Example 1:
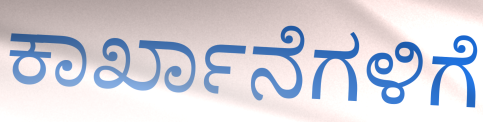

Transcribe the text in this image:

ಕಾರ್ಖಾನೆಗಳಿಗೆ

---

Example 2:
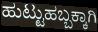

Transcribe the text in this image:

ಹುಟ್ಟುಹಬ್ಬಕ್ಕಾಗಿ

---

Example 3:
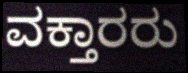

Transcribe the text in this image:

ವಕ್ತಾರರು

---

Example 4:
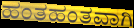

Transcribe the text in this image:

ಹಂತಹಂತವಾಗಿ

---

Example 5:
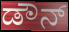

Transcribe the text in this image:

ಡೌನ್